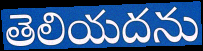
తెలియదను